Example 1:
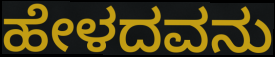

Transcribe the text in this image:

ಹೇಳದವನು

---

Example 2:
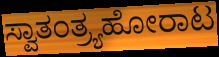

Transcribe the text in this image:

ಸ್ವಾತಂತ್ರ್ಯಹೋರಾಟ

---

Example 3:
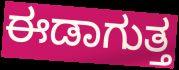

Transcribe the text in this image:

ಈಡಾಗುತ್ತ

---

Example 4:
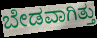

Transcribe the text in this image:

ಬೇಡವಾಗಿತ್ತು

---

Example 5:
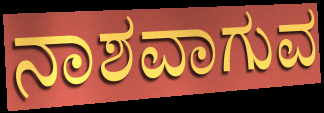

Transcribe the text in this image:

ನಾಶವಾಗುವ